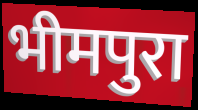
भीमपुरा